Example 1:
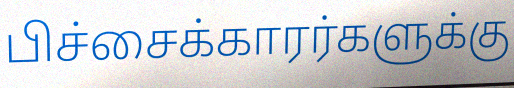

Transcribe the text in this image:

பிச்சைக்காரர்களுக்கு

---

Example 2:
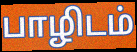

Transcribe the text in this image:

பாழிடம்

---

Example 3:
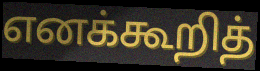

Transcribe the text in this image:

எனக்கூறித்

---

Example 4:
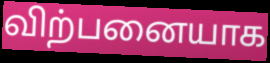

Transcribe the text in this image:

விற்பனையாக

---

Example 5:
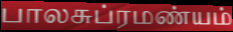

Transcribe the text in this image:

பாலசுப்ரமண்யம்